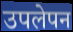
उपलेपन